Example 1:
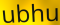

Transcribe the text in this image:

ubhu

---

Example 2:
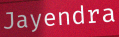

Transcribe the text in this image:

Jayendra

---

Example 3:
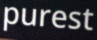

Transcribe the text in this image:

purest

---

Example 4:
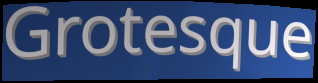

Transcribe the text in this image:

Grotesque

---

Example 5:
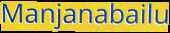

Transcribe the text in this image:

Manjanabailu